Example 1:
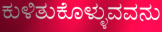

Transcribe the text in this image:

ಕುಳಿತುಕೊಳ್ಳುವವನು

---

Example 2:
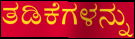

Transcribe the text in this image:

ತಡಿಕೆಗಳನ್ನು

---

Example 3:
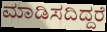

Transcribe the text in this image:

ಮಾಡಿಸದಿದ್ದರೆ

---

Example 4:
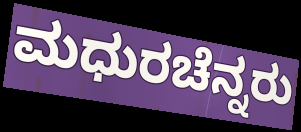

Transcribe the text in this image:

ಮಧುರಚೆನ್ನರು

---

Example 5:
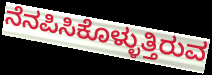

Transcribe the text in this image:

ನೆನಪಿಸಿಕೊಳ್ಳುತ್ತಿರುವ